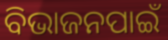
ବିଭାଜନପାଇଁ